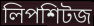
লিপশিটজ